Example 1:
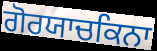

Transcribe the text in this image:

ਗੋਰਯਾਚਕਿਨਾ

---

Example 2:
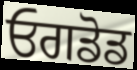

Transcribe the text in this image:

ਓਗਡੋਡ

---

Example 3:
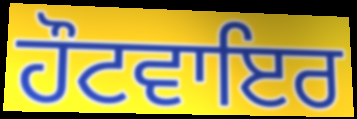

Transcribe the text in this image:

ਹੌਟਵਾਇਰ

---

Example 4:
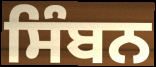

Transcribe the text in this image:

ਸਿੰਬਨ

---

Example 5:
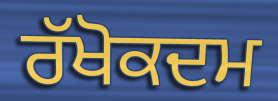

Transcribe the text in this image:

ਰੱਖੋਕਦਮ